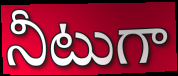
నీటుగా